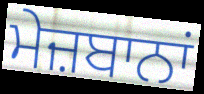
ਮੇਜ਼ਬਾਨਾਂ